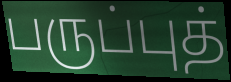
பருப்புத்